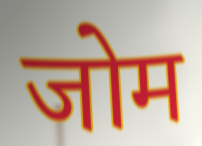
जोम